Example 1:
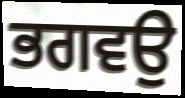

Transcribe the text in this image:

ਭਗਵਉ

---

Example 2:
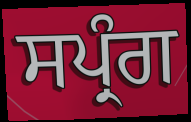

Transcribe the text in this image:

ਸਪ੍ਰੰਗ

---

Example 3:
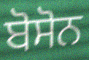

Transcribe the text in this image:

ਬੋਸੋਨ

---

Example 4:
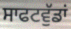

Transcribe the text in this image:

ਸਾਫਟਵੁੱਡਾਂ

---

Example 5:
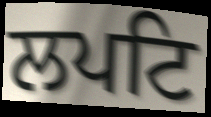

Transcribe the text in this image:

ਲਪਟਿ